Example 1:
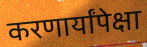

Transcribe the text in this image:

करणार्यांपेक्षा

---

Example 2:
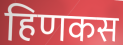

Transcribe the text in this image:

हिणकस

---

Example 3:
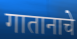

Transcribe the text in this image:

गातानाचे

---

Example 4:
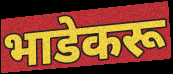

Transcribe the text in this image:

भाडेकरू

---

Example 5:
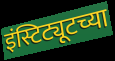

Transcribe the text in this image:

इंस्टिट्यूटच्या